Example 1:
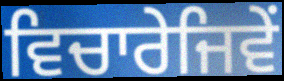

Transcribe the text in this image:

ਵਿਚਾਰੇਜਿਵੇਂ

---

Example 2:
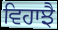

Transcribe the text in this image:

ਵਿਹਾਝੈ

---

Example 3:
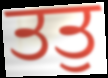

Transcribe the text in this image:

ਤਤੁ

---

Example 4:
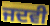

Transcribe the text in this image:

ਜਦਵੀ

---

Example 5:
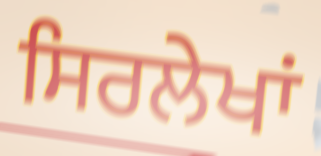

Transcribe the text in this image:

ਸਿਰਲੇਖਾਂ